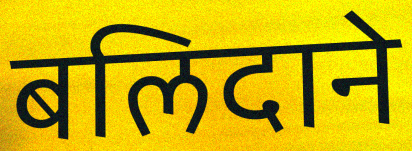
बलिदाने